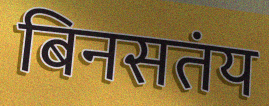
बिनसतंय